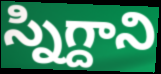
స్నిగ్దాని